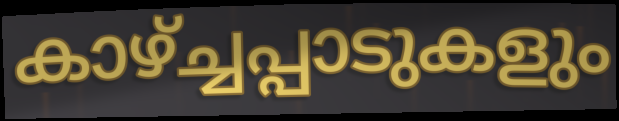
കാഴ്ച്ചപ്പാടുകളും